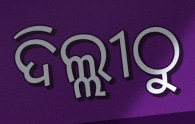
ଦିଲ୍ଲୀଠୁ